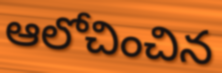
ఆలోచించిన